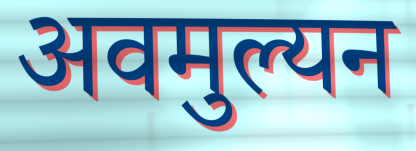
अवमुल्यन